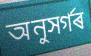
অনুসৰ্গৰ